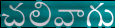
చలివాగు